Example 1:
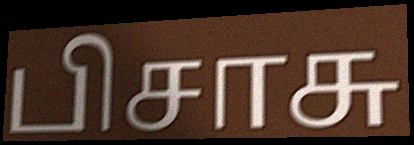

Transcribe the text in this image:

பிசாசு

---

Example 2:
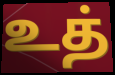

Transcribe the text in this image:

உத்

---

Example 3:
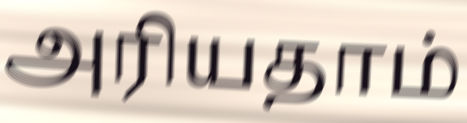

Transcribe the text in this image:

அரியதாம்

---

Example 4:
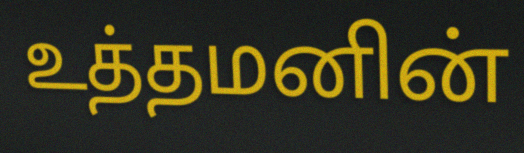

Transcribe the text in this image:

உத்தமனின்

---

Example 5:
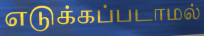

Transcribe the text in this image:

எடுக்கப்படாமல்